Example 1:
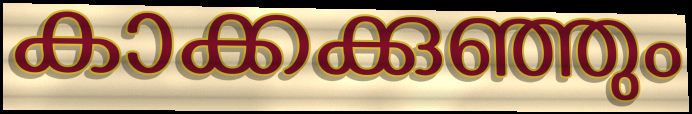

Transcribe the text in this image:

കാക്കക്കുഞ്ഞും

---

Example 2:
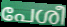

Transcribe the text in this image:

പേശീ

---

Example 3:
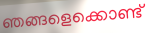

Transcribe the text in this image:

ഞങ്ങളെക്കൊണ്ട്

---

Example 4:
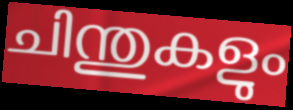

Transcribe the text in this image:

ചിന്തുകളും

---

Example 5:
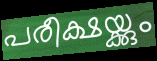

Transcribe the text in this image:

പരീക്ഷയ്ക്കും